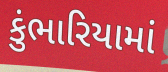
કુંભારિયામાં